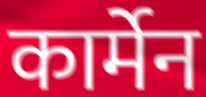
कार्मेन